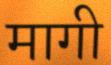
मागी